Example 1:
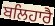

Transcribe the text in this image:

ਬਲਿਹਾਰੈ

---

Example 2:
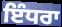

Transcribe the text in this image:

ਇੰਧਰਾ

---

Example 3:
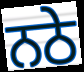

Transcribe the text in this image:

ਨਠੇ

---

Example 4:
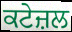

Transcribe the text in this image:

ਕਟੇਜ਼ਲ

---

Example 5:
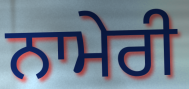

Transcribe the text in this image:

ਨਾਮੇਰੀ